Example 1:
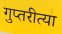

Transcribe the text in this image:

गुप्तरीत्या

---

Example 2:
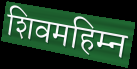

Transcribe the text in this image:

शिवमहिम्न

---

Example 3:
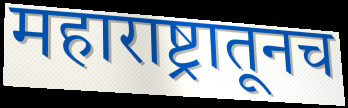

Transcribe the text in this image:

महाराष्ट्रातूनच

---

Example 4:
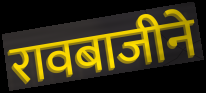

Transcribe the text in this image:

रावबाजीने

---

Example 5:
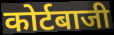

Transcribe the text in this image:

कोर्टबाजी